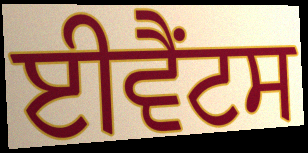
ਈਵੈਂਟਸ